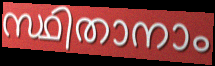
സ്ഥിതാനാം